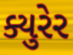
ક્યુરેર